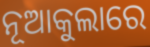
ନୂଆକୁଲାରେ